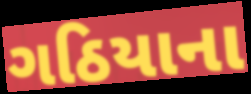
ગઠિયાના